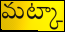
మట్కా